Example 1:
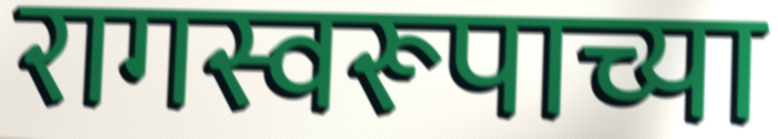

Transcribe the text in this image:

रागस्वरूपाच्या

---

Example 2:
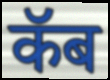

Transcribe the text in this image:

कॅब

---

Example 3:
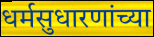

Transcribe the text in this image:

धर्मसुधारणांच्या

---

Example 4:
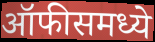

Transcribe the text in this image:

ऑफीसमध्ये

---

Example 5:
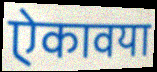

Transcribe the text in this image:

ऐकावया